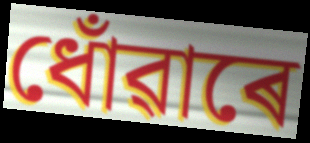
ধোঁৱাৰে